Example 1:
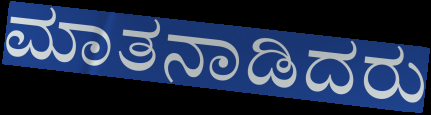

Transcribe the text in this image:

ಮಾತನಾಡಿದರು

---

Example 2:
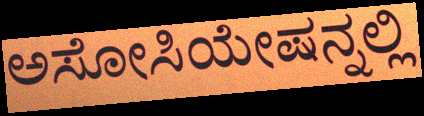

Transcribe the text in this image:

ಅಸೋಸಿಯೇಷನ್ನಲ್ಲಿ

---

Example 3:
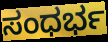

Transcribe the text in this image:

ಸಂಧರ್ಭ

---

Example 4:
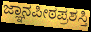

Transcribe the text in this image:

ಜ್ಞಾನಪೀಠಪ್ರಶಸ್ತಿ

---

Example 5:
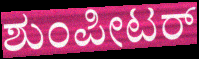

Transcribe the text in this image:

ಶುಂಪೀಟರ್